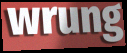
wrung